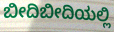
ಬೀದಿಬೀದಿಯಲ್ಲಿ